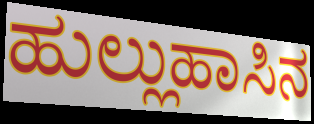
ಹುಲ್ಲುಹಾಸಿನ